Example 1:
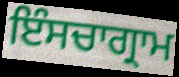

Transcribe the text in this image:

ਇੰਸਚਾਗ੍ਰਾਮ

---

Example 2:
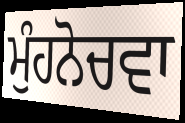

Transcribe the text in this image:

ਮੁੰਹਨੋਚਵਾ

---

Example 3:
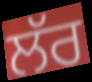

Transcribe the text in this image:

ਲੱਰ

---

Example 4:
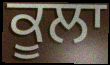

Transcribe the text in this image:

ਕੂਲਾ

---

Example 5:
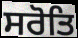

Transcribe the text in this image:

ਸਰੋਤਿ